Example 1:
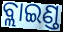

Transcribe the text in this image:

ବ୍ଲାଇଣ୍ଡ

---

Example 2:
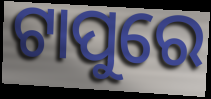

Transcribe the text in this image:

ଟାପୁରେ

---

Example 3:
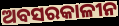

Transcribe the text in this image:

ଅବସରକାଳୀନ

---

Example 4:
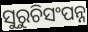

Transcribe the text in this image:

ସୁରୁଚିସଂପନ୍ନ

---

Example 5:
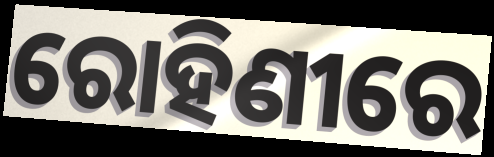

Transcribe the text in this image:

ରୋହିଣୀରେ